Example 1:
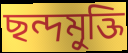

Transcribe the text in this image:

ছন্দমুক্তি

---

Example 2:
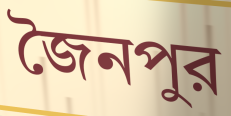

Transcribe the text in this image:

জৈনপুর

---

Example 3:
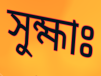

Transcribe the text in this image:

সুহ্মাঃ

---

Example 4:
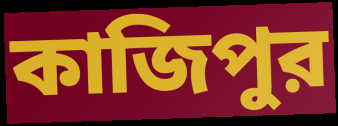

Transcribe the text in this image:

কাজিপুর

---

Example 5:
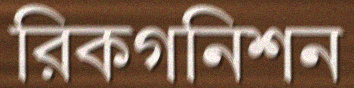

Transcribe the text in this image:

রিকগনিশন